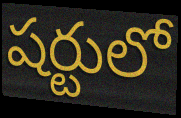
షర్టులో